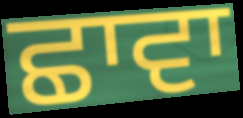
ਛਾਵਾ